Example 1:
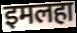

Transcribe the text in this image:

इमलहा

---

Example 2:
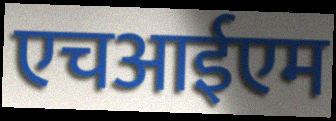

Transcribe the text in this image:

एचआईएम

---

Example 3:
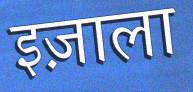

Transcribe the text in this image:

इज़ाला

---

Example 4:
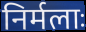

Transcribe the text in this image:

निर्मलाः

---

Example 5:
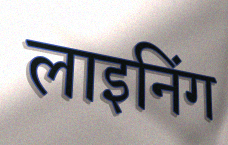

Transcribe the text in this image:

लाइनिंग